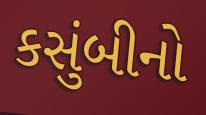
કસુંબીનો